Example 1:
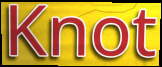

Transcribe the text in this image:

Knot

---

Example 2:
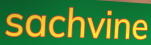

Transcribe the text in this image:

sachvine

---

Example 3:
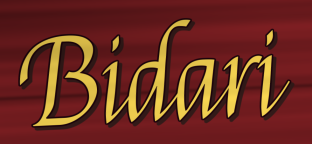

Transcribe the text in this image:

Bidari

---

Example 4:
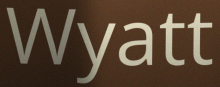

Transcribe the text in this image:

Wyatt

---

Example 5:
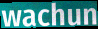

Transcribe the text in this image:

wachun